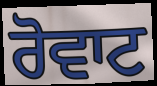
ਰੋਵਾਟ